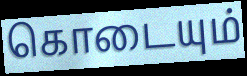
கொடையும்